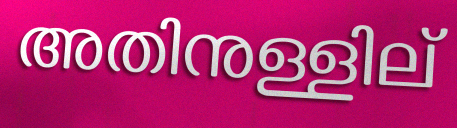
അതിനുള്ളില്